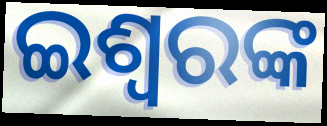
ଇଶ୍ୱରଙ୍କ